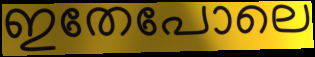
ഇതേപോലെ